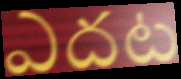
ఎదట